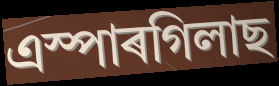
এস্পাৰগিলাছ